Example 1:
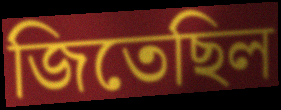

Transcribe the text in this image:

জিতেছিল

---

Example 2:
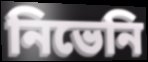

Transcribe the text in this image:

নিভেনি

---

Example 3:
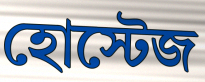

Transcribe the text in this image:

হোস্টেজ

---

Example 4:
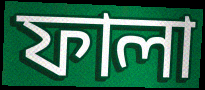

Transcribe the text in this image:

ফালা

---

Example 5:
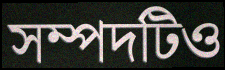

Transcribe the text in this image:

সম্পদটিও